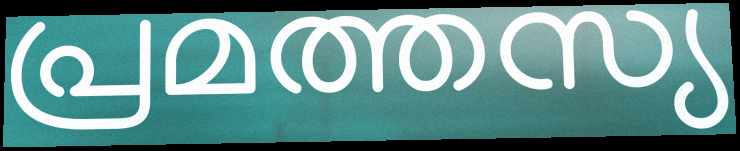
പ്രമത്തസ്യ